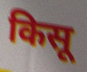
किसू